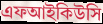
এফআইকিউসি